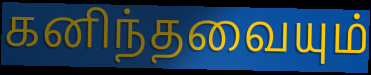
கனிந்தவையும்